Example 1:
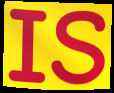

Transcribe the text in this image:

IS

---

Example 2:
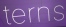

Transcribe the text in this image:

terns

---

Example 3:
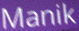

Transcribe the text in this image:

Manik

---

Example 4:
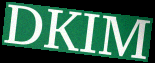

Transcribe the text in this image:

DKIM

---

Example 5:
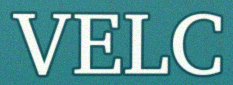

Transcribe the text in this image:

VELC